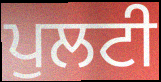
ਪੁਲਟੀ